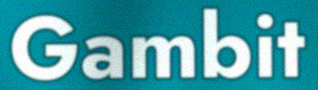
Gambit